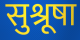
सुश्रूषा